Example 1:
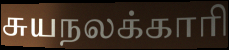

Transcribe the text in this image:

சுயநலக்காரி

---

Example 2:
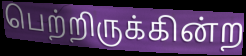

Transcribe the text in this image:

பெற்றிருக்கின்ற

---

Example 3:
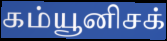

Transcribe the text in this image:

கம்யூனிசக்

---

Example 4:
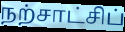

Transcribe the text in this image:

நற்சாட்சிப்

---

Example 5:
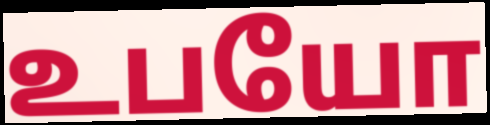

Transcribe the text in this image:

உபயோ